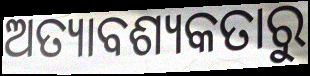
ଅତ୍ୟାବଶ୍ୟକତାରୁ